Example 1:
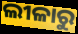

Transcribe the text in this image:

ଲୀଳାରୁ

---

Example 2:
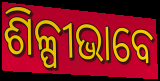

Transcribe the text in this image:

ଶିଳ୍ପୀଭାବେ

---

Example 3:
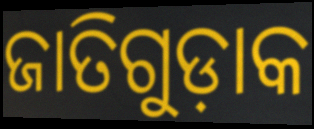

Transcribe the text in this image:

ଜାତିଗୁଡ଼ାକ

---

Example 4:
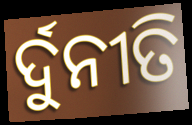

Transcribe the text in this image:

ର୍ଦୁନୀତି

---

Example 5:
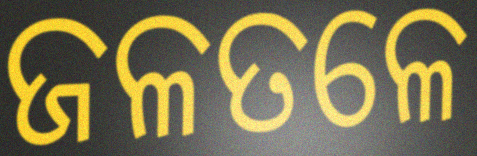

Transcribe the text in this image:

ଜଳତଳେ